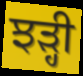
ਝੜ੍ਹੀ